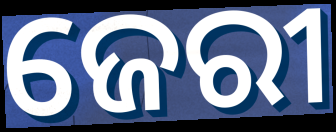
ଜେରୀ